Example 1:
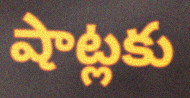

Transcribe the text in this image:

షాట్లకు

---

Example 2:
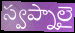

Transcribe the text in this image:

స్వప్నాలై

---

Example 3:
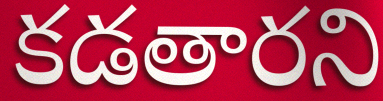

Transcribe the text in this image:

కడతారని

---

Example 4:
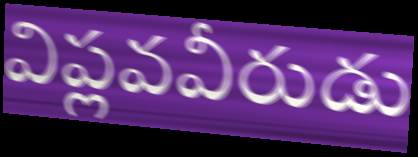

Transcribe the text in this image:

విప్లవవీరుడు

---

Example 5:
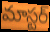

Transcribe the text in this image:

మాస్టర్